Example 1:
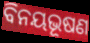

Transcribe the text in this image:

ବିନୟଭୂଷଣ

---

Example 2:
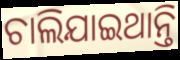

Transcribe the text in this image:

ଚାଲିଯାଇଥାନ୍ତି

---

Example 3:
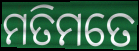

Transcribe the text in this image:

ମତିମତେ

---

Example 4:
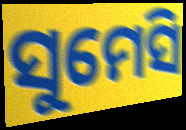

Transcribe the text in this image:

ସୁମେସି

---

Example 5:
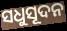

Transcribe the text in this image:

ସଧୁସୂଦନ